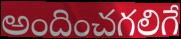
అందించగలిగే